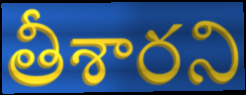
తీశారని